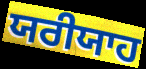
ਯਰੀਯਾਹ